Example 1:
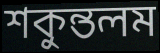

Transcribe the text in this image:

শকুন্তলম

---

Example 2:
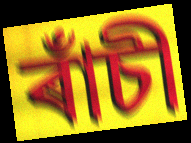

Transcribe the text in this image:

ৰাঁচী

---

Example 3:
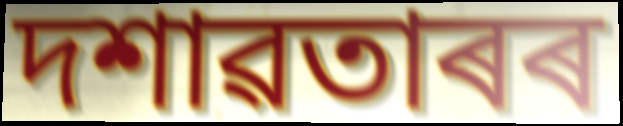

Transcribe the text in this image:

দশাৱতাৰৰ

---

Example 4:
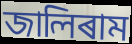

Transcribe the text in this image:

জালিৰাম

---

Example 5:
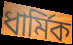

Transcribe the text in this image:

ধাৰ্মিক